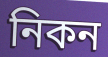
নিকন